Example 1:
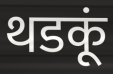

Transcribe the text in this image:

थडकूं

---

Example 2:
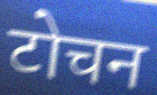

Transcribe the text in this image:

टोचन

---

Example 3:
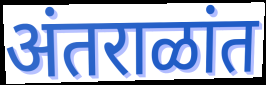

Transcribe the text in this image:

अंतराळांत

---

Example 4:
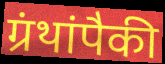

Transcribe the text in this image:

ग्रंथांपैकी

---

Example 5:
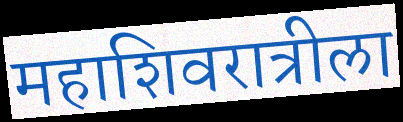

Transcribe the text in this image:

महाशिवरात्रीला